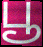
பூ